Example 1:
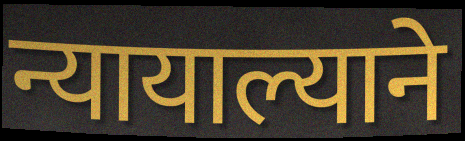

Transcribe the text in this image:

न्यायाल्याने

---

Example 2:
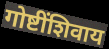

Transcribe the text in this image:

गोष्टींशिवाय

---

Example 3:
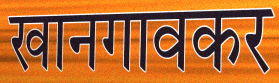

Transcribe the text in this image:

खानगावकर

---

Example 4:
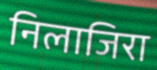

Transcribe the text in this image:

निलाजिरा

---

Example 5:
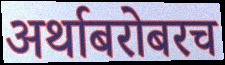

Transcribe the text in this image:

अर्थाबरोबरच